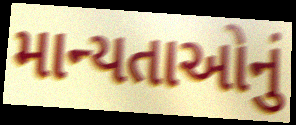
માન્યતાઓનું